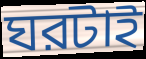
ঘরটাই